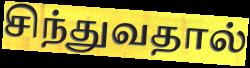
சிந்துவதால்